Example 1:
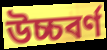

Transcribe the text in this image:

উচ্চবৰ্ণ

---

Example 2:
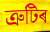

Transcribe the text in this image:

ত্ৰুটিৰ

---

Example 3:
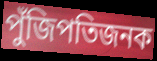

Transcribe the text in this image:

পুঁজিপতিজনক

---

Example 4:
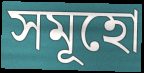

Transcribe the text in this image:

সমূহো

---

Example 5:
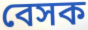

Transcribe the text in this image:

বেসক